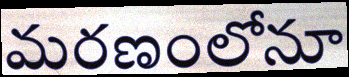
మరణంలోనూ